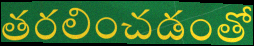
తరలించడంతో